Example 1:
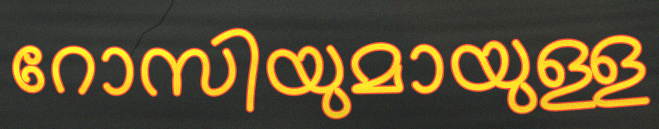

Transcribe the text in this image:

റോസിയുമായുള്ള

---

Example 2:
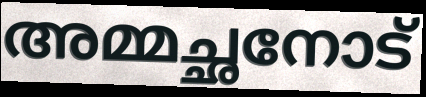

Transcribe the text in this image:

അമ്മച്ഛനോട്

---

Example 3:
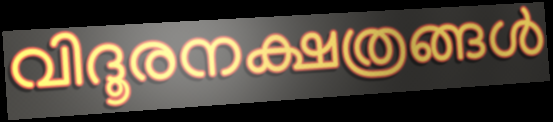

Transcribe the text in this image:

വിദൂരനക്ഷത്രങ്ങൾ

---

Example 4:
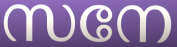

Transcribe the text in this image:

സനേ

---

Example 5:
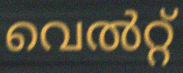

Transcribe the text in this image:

വെൽറ്റ്